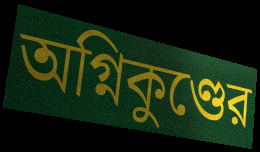
অগ্নিকুণ্ডের